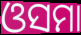
ଓସମା